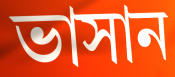
ভাসান